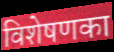
विशेषणका